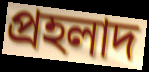
প্রহলাদ